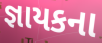
જ્ઞાયકના